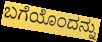
ಬಗೆಯೊಂದನ್ನು